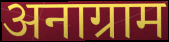
अनाग्राम